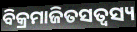
ବିକ୍ରମାଜିତସତ୍ଵସ୍ୟ